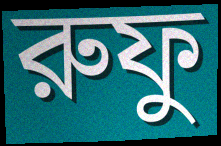
রুফু